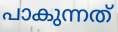
പാകുന്നത്